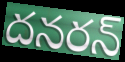
దనరన్